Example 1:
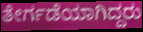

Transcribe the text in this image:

ತೇರ್ಗಡೆಯಾಗಿದ್ದರು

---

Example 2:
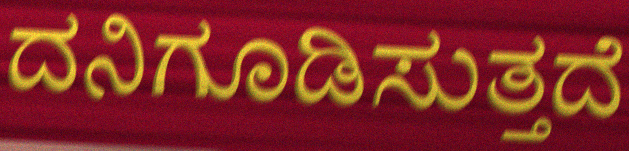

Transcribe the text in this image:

ದನಿಗೂಡಿಸುತ್ತದೆ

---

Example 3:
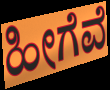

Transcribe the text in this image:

ಹೀಗೆವೆ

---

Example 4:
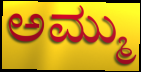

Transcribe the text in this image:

ಅಮ್ಮು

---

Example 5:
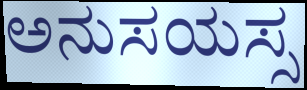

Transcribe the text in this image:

ಅನುಸಯಸ್ಸ